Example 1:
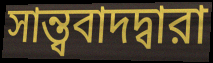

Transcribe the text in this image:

সান্ত্ববাদদ্বারা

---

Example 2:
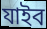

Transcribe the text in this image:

যাইব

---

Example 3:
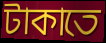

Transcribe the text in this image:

টাকাতে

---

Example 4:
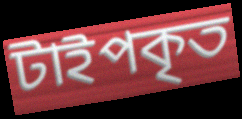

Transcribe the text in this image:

টাইপকৃত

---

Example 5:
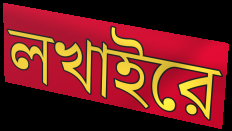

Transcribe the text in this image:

লখাইরে